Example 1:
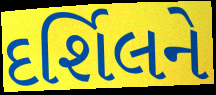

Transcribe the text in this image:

દર્શિલને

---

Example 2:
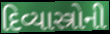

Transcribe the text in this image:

દિવ્યાસ્ત્રોની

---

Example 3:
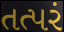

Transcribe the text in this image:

તત્પરં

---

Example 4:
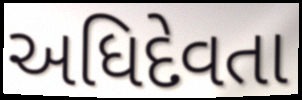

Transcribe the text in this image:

અધિદેવતા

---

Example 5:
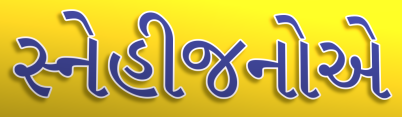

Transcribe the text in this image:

સ્નેહીજનોએ